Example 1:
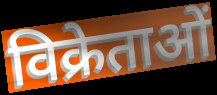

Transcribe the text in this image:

विक्रेताओं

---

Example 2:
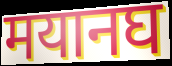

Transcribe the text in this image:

मयानघ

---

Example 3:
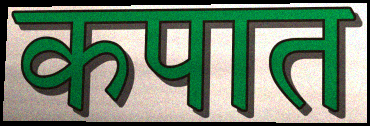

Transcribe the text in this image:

कपात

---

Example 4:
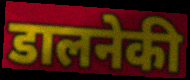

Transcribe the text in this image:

डालनेकी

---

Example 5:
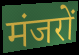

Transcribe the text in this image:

मंजरों